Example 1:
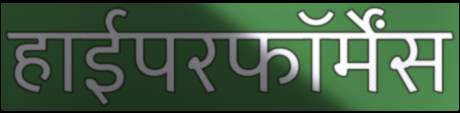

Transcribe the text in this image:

हाईपरफॉर्मेंस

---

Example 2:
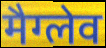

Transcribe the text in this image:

मैग्लेव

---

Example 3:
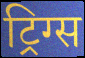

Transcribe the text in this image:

ट्रिग्स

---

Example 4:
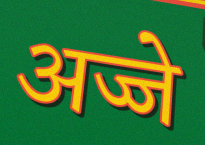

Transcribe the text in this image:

अज्जे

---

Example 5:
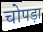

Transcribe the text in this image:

चोपड़ा